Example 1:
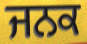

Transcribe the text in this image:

ਜਨਕ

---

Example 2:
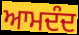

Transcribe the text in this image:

ਆਮਦੰਦ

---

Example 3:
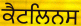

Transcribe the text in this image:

ਕੈਟਲਿਨਸ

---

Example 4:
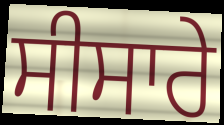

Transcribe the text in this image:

ਸੀਸਾਰੇ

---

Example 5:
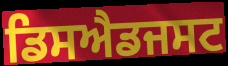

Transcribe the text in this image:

ਡਿਸਐਡਜਸਟ